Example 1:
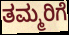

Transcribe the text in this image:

ತಮ್ಮರಿಗೆ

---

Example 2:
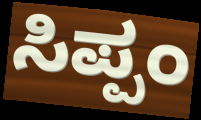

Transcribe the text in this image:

ಸಿಪ್ಪಂ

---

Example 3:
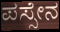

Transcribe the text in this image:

ಪಸ್ಸೇನ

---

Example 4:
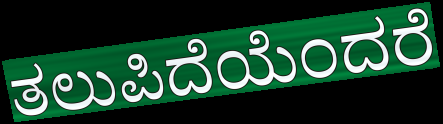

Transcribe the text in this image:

ತಲುಪಿದೆಯೆಂದರೆ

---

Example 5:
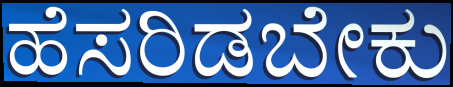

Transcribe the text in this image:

ಹೆಸರಿಡಬೇಕು